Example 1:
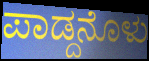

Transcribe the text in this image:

ಪಾಡ್ದನೊಳು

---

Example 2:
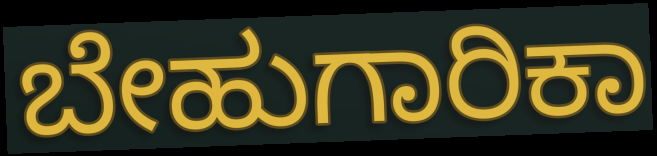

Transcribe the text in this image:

ಬೇಹುಗಾರಿಕಾ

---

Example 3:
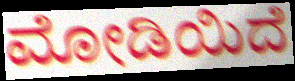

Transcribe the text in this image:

ಮೋಡಿಯಿದೆ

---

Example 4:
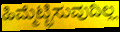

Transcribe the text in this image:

ಹಿಮ್ಮೆಟ್ಟಿಸುವುದಿಲ್ಲ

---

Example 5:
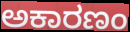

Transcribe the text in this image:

ಅಕಾರಣಂ